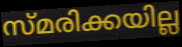
സ്മരിക്കയില്ല